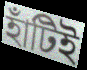
হাঁটিই